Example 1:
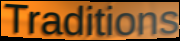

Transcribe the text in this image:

Traditions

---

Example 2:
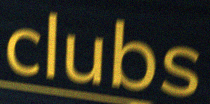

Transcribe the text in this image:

clubs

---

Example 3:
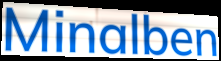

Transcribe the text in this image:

Minalben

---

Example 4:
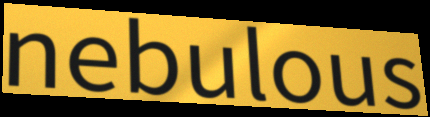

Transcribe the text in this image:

nebulous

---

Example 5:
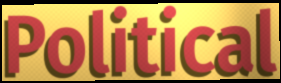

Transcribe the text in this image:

Political